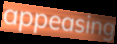
appeasing